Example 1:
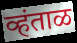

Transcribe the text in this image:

व्हंताळ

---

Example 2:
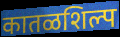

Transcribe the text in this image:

कातळशिल्प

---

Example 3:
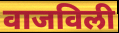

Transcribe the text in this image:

वाजविली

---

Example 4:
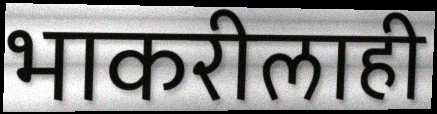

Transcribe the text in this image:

भाकरीलाही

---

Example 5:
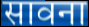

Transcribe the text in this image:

सावना